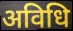
अविधि